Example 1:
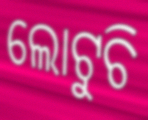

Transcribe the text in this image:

ଲୋଟୁଚି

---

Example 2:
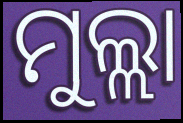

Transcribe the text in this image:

ମୁଲ୍ଲା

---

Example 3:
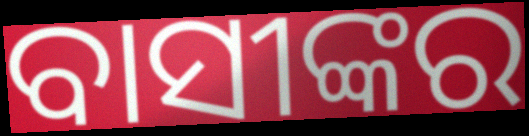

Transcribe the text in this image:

ବାସୀଙ୍କର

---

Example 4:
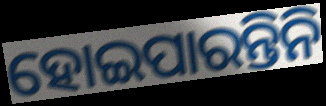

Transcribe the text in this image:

ହୋଇପାରନ୍ତିନି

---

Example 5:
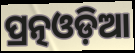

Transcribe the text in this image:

ପ୍ରତ୍ନଓଡ଼ିଆ